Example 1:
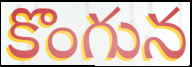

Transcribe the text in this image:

కొంగున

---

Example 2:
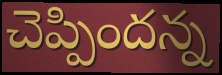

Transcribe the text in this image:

చెప్పిందన్న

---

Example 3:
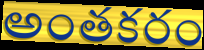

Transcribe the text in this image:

అంతకరం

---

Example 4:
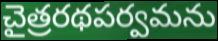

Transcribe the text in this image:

చైత్రరథపర్వమను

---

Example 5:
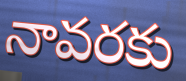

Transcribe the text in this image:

నావరకు